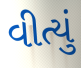
વીત્યું